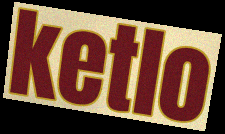
ketlo